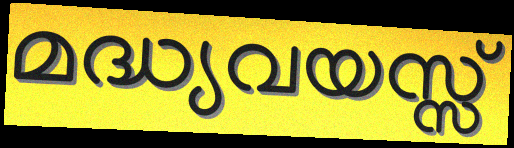
മദ്ധ്യവയസ്സ്